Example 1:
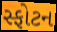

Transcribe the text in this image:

સ્ફોટન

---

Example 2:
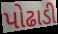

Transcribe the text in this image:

પોઢાડી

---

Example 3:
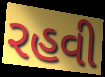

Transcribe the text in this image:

રહવી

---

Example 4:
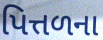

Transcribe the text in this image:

પિત્તળના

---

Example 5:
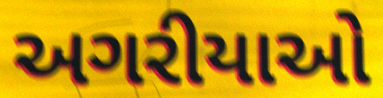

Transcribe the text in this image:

અગરીયાઓ